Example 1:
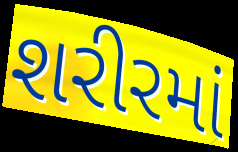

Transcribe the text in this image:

શરીરમાં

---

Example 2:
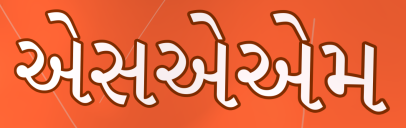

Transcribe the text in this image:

એસએએમ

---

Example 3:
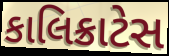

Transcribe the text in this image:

કાલિક્રાટેસ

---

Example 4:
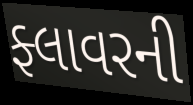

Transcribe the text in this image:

ફ્લાવરની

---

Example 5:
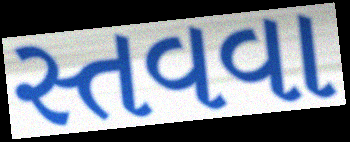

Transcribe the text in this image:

સ્તવવા